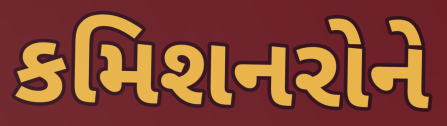
કમિશનરોને